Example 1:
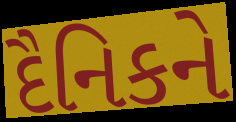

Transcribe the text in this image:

દૈનિકને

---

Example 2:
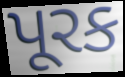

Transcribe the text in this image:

પૂરક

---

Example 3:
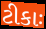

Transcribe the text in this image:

ટીકાઃ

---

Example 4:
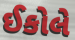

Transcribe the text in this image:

ઈકોલે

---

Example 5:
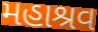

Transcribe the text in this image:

મહાશ્રવ